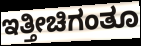
ಇತ್ತೀಚಿಗಂತೂ